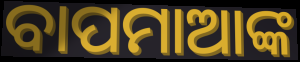
ବାପମାଆଙ୍କ